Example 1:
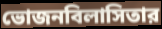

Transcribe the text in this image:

ভোজনবিলাসিতার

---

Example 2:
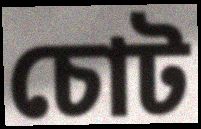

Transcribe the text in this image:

চোট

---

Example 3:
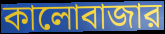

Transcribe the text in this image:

কালোবাজার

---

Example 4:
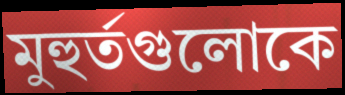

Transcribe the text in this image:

মুহুর্তগুলোকে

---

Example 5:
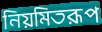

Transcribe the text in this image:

নিয়মিতরূপ